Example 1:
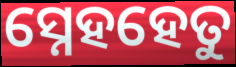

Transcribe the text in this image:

ସ୍ନେହହେତୁ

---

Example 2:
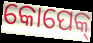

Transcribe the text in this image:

କୋପେକ୍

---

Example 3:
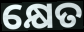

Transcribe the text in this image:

କ୍ଷେତ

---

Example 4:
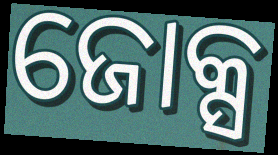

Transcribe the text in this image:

ଜୋକ୍ସ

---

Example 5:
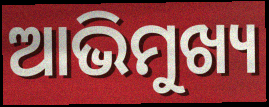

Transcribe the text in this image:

ଆଭିମୁଖ୍ୟ